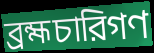
ব্রহ্মচারিগণ